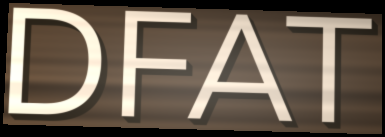
DFAT